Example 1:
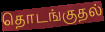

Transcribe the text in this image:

தொடங்குதல்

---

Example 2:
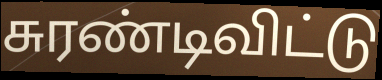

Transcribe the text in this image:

சுரண்டிவிட்டு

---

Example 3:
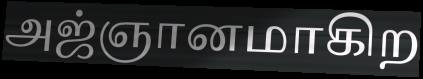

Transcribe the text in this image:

அஜ்ஞானமாகிற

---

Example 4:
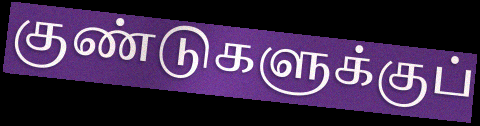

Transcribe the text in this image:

குண்டுகளுக்குப்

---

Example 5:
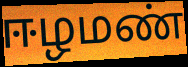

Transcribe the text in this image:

ஈழமண்